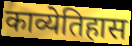
काव्येतिहास